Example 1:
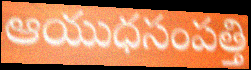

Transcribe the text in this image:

ఆయుధసంపత్తి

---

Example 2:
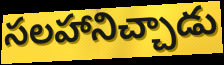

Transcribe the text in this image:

సలహానిచ్చాడు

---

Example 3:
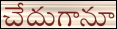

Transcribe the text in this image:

చేదుగానూ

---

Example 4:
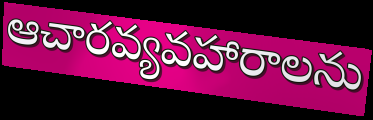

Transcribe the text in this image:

ఆచారవ్యవహారాలను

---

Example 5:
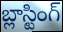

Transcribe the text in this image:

బ్లాస్టింగ్